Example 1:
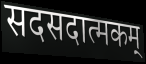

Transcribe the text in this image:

सदसदात्मकम्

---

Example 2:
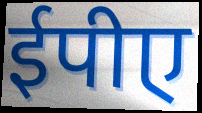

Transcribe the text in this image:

ईपीए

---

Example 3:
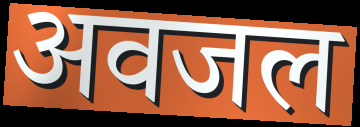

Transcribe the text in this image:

अवजल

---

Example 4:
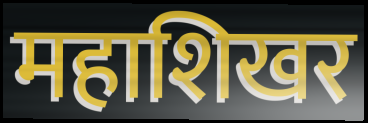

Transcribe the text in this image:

महाशिखर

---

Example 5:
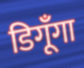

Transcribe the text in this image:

डिगूँगा